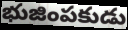
భుజింపకుడు